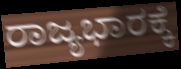
ರಾಜ್ಯಭಾರಕ್ಕೆ